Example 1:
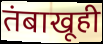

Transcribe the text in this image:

तंबाखूही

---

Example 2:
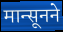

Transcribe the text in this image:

मान्सूनने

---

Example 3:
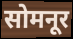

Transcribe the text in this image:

सोमनूर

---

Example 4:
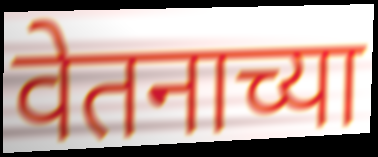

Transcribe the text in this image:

वेतनाच्या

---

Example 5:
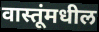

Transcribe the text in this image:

वास्तूंमधील